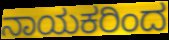
ನಾಯಕರಿಂದ